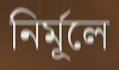
নির্মূলে